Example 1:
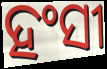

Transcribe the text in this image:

ହଂସୀ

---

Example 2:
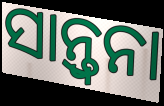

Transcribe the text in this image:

ସାନ୍ତ୍ବନା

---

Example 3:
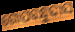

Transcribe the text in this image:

ଗୋପବନ୍ଧୁଦାସ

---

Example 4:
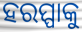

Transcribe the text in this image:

ହରପ୍ପାକୁ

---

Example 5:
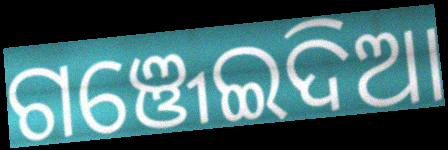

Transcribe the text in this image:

ଗଞ୍ଜେଇଦିଆ